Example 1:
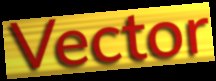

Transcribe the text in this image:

Vector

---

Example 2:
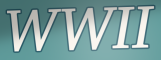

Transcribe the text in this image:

WWII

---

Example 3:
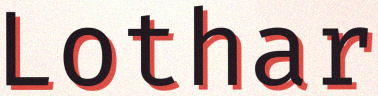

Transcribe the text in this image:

Lothar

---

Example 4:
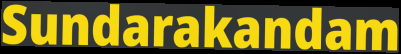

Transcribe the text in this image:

Sundarakandam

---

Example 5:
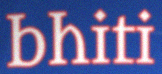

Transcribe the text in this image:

bhiti